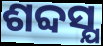
ଶବ୍ଦସ୍ଯ